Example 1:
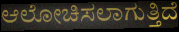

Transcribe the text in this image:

ಆಲೋಚಿಸಲಾಗುತ್ತಿದೆ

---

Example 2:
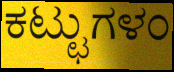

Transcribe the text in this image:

ಕಟ್ಟುಗಳಂ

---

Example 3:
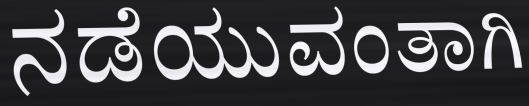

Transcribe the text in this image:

ನಡೆಯುವಂತಾಗಿ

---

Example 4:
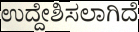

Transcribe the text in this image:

ಉದ್ದೇಶಿಸಲಾಗಿದೆ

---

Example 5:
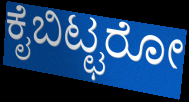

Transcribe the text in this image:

ಕೈಬಿಟ್ಟರೋ